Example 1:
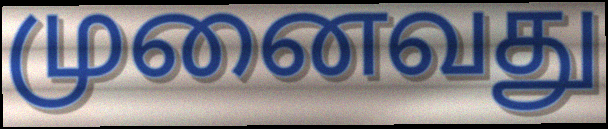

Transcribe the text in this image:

முனைவது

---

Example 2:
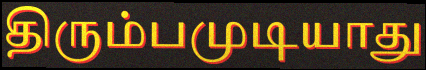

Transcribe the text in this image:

திரும்பமுடியாது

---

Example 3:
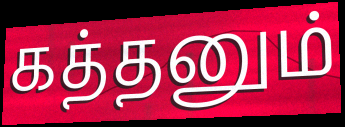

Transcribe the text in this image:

கத்தனும்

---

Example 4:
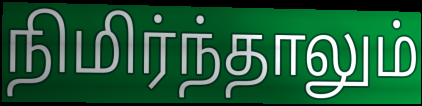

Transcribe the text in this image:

நிமிர்ந்தாலும்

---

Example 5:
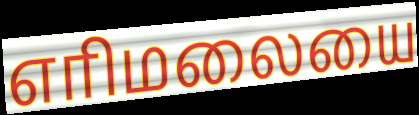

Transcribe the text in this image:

எரிமலையை